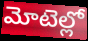
మోటెల్లో